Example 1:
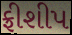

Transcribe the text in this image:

ફ્રીશીપ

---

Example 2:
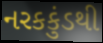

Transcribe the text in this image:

નરકકુંડથી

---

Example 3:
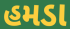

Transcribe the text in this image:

હમડા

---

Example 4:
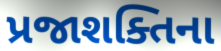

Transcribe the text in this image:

પ્રજાશક્તિના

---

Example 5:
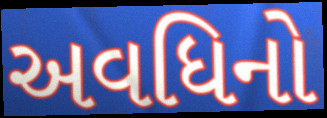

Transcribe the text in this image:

અવધિનો